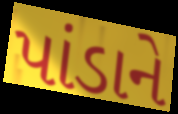
પાંડાને